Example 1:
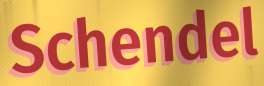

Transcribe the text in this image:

Schendel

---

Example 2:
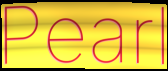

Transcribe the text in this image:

Pearl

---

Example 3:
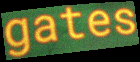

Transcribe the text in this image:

gates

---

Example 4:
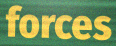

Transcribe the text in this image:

forces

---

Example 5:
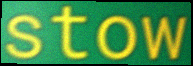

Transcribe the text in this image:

stow